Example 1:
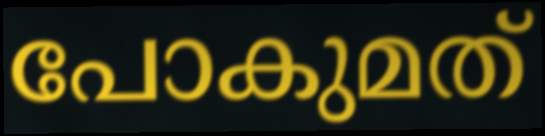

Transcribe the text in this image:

പോകുമത്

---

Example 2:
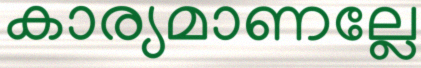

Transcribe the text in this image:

കാര്യമാണല്ലേ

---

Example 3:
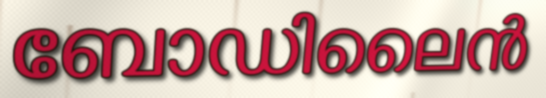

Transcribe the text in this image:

ബോഡിലൈൻ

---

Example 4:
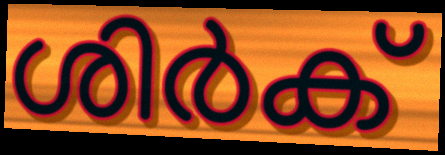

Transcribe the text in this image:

ശിർക്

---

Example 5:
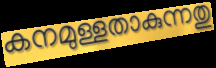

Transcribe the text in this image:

കനമുള്ളതാകുന്നതു